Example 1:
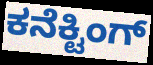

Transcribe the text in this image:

ಕನೆಕ್ಟಿಂಗ್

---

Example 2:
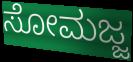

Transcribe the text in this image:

ಸೋಮಜ್ಜ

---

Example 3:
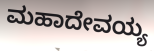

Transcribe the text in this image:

ಮಹಾದೇವಯ್ಯ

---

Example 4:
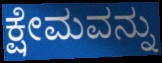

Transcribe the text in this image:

ಕ್ಷೇಮವನ್ನು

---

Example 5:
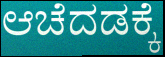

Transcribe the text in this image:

ಆಚೆದಡಕ್ಕೆ